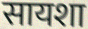
सायशा